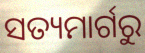
ସତ୍ୟମାର୍ଗରୁ